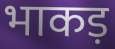
भाकड़